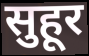
सुहूर